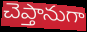
చెప్తానుగా